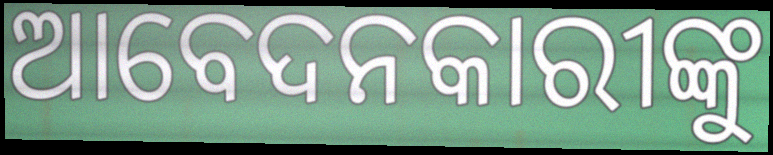
ଆବେଦନକାରୀଙ୍କୁ